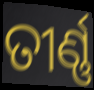
ତୀର୍ଣ୍ଣ